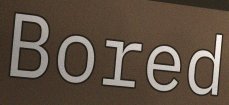
Bored